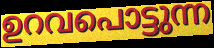
ഉറവപൊട്ടുന്ന